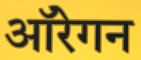
ऑरेगन